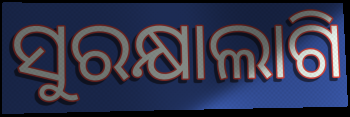
ସୁରକ୍ଷାଲାଗି